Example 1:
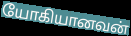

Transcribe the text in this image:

யோகியானவன்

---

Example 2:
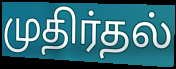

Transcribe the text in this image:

முதிர்தல்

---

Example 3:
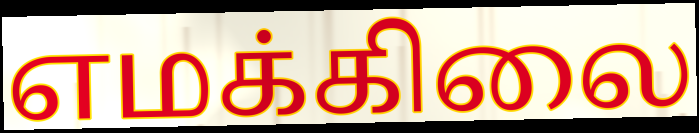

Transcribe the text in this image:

எமக்கிலை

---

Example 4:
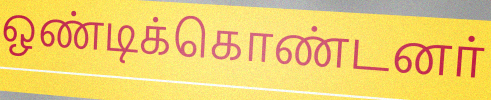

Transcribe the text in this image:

ஒண்டிக்கொண்டனர்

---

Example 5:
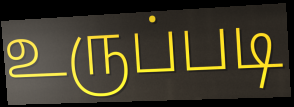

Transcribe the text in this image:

உருப்படி